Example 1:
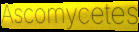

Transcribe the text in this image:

Ascomycetes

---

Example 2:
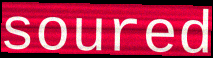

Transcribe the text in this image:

soured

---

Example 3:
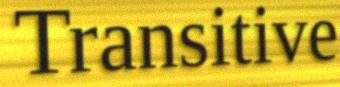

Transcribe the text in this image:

Transitive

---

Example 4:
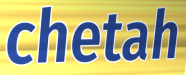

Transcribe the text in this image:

chetah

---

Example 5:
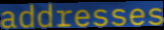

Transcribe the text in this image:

addresses